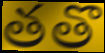
తతొ